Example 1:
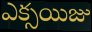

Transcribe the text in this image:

ఎక్సయిజు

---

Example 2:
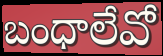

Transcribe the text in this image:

బంధాలేవో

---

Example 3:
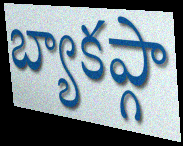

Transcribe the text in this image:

బ్యాకప్గా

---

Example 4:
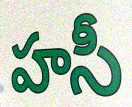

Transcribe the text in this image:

హసీ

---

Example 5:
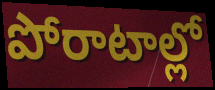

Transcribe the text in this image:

పోరాటాల్లో